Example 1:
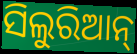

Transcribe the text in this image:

ସିଲୁରିଆନ୍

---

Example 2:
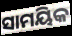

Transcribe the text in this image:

ସାମୟିକ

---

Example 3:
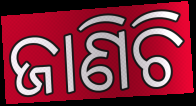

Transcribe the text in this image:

ଜାଣିଚି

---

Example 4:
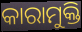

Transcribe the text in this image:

କାରାମୁକ୍ତି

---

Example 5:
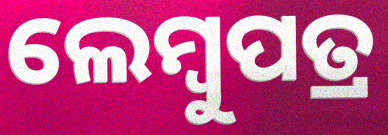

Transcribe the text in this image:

ଲେମ୍ବୁପତ୍ର